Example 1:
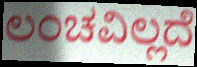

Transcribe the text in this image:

ಲಂಚವಿಲ್ಲದೆ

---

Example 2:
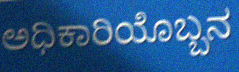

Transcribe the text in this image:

ಅಧಿಕಾರಿಯೊಬ್ಬನ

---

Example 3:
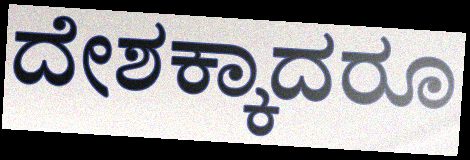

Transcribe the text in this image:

ದೇಶಕ್ಕಾದರೂ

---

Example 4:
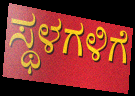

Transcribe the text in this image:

ಸ್ಥಳಗಳಿಗೆ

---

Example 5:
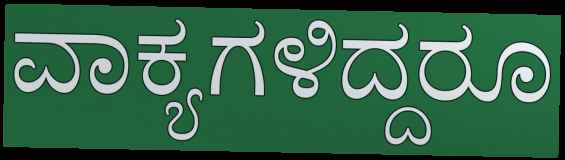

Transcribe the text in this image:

ವಾಕ್ಯಗಳಿದ್ದರೂ